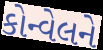
કોન્વેલને